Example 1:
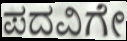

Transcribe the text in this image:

ಪದವಿಗೇ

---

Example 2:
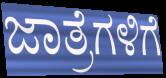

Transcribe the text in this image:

ಜಾತ್ರೆಗಳಿಗೆ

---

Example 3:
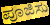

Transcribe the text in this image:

ಪೂಜಿಸು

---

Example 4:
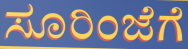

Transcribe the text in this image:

ಸೂರಿಂಜೆಗೆ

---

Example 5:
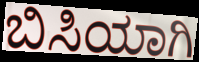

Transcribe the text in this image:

ಬಿಸಿಯಾಗಿ